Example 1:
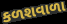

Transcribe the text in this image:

કળશવાળા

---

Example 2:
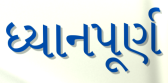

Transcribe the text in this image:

ધ્યાનપૂર્ણ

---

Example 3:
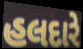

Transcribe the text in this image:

હલદારે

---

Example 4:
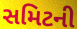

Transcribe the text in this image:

સમિટની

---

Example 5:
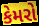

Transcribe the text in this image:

કેમરો